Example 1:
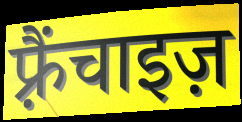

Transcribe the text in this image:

फ़्रैंचाइज़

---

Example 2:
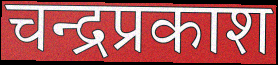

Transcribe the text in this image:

चन्द्रप्रकाश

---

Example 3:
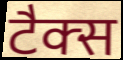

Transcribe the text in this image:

टैक्‍स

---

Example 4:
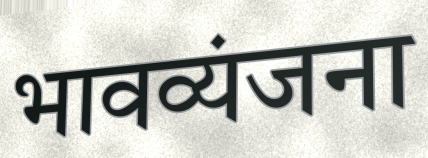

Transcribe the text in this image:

भावव्यंजना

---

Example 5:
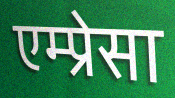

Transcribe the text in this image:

एम्प्रेसा